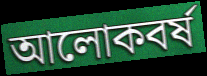
আলোকবৰ্ষ